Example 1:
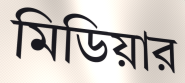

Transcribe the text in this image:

মিডিয়ার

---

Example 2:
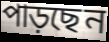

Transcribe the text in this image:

পাড়ছেন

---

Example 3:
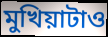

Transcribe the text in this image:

মুখিয়াটাও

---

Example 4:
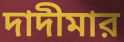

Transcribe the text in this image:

দাদীমার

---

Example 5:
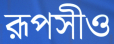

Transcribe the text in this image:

রূপসীও